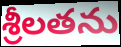
శ్రీలతను